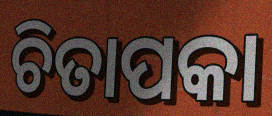
ଚିତାପକା